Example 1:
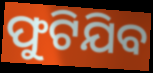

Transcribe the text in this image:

ଫୁଟିଯିବ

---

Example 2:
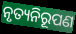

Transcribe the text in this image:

ନୃତ୍ୟନିରୂପଣ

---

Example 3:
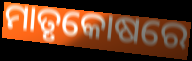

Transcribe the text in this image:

ମାତୃକୋଷରେ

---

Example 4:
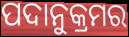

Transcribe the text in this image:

ପଦାନୁକ୍ରମର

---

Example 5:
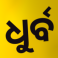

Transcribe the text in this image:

ଧୁର୍ବ